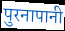
पुरनापानी